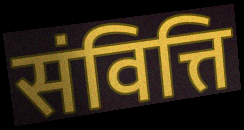
संवित्ति